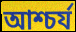
আশ্চর্য